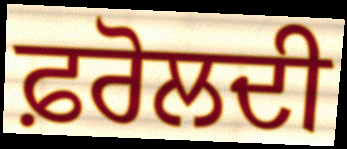
ਫ਼ਰੋਲਦੀ